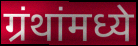
ग्रंथांमध्ये